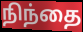
நிந்தை